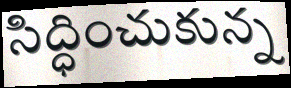
సిద్ధించుకున్న